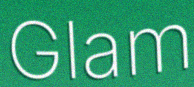
Glam